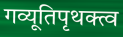
गव्यूतिपृथक्त्व